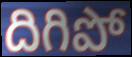
దిగిపో